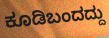
ಕೂಡಿಬಂದದ್ದು